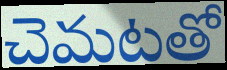
చెమటతో